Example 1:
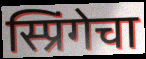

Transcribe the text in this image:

स्प्रिंगेचा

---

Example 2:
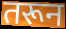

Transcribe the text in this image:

तरून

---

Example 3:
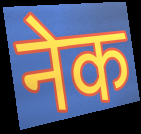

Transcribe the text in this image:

नेक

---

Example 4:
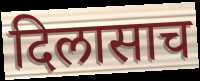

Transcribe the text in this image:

दिलासाच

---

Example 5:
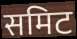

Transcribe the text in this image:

समिट